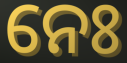
ନେଃ